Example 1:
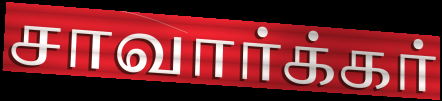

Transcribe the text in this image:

சாவார்க்கர்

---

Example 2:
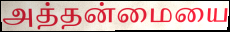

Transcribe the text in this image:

அத்தன்மையை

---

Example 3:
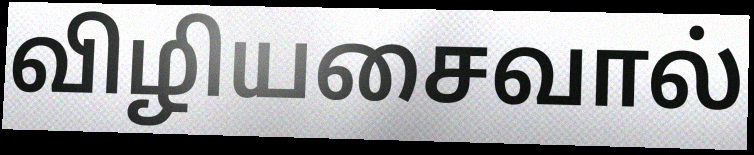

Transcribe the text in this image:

விழியசைவால்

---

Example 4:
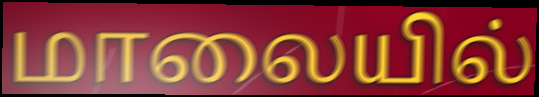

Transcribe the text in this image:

மாலையில்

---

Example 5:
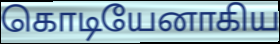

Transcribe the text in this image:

கொடியேனாகிய